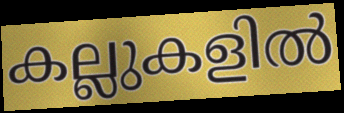
കല്ലുകളിൽ